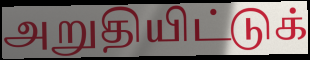
அறுதியிட்டுக்